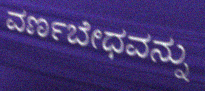
ವರ್ಣಬೇಧವನ್ನು